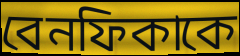
বেনফিকাকে